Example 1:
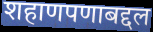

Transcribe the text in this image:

शहाणपणाबद्दल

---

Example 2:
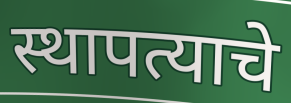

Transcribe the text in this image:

स्थापत्याचे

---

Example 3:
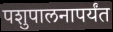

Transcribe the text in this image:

पशुपालनापर्यंत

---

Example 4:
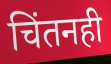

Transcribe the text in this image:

चिंतनही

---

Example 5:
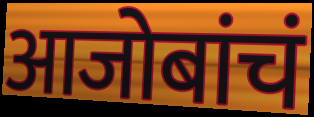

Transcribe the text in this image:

आजोबांचं